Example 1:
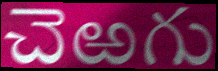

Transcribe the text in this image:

చెఱగు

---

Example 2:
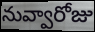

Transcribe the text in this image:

నువ్వారోజు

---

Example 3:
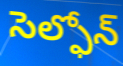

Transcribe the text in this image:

సెల్ఫోన్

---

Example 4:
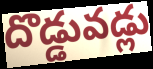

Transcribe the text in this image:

దొడ్డువడ్లు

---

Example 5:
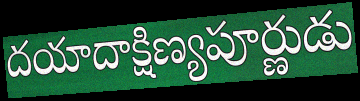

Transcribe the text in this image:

దయాదాక్షిణ్యపూర్ణుడు